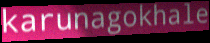
karunagokhale